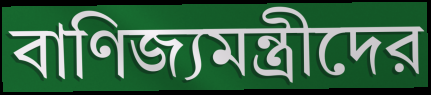
বাণিজ্যমন্ত্রীদের